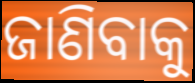
ଜାଣିବାକୁ